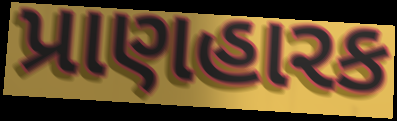
પ્રાણહારક